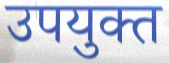
उपयुक्त